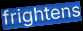
frightens